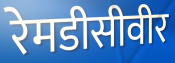
रेमडीसीवीर